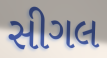
સીગલ